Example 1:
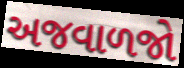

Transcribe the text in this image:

અજવાળજો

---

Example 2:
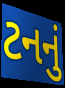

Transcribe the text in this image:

ટનનું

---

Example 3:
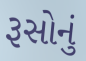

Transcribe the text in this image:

રૂસોનું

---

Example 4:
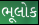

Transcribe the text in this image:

ભૂલોક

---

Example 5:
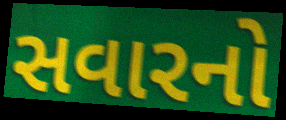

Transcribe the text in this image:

સવારનો